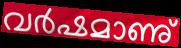
വർഷമാണു്